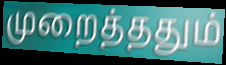
முறைத்ததும்